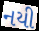
નયી